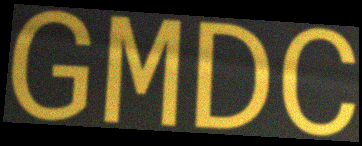
GMDC